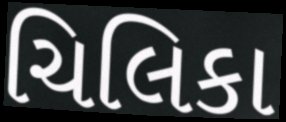
ચિલિકા